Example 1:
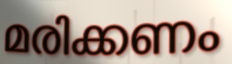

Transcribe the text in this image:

മരിക്കണം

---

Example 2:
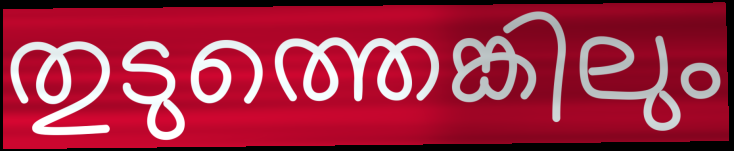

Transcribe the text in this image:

തുടുത്തെങ്കിലും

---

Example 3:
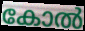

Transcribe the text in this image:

കോൽ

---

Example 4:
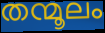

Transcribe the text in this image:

തന്മൂലം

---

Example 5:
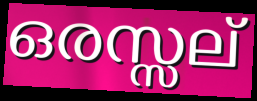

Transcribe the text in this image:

ഒരസ്സല്